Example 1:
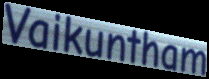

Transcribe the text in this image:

Vaikuntham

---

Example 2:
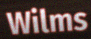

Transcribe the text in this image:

Wilms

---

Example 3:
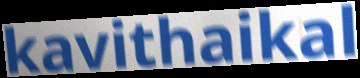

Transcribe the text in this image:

kavithaikal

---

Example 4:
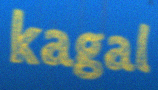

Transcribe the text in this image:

kagal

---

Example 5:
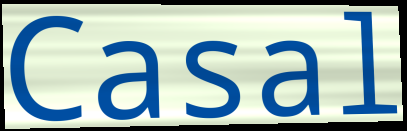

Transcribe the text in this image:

Casal